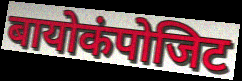
बायोकंपोजिट